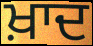
ਖ਼ਾਦ